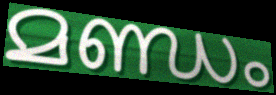
മണ്ഡം